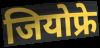
जियोफ्रे